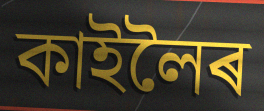
কাইলৈৰ